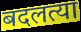
बदलत्या